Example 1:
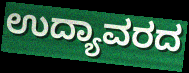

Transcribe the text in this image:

ಉದ್ಯಾವರದ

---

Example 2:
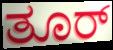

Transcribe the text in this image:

ತೂರ್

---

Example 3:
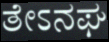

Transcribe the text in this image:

ತೇಽನಘ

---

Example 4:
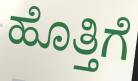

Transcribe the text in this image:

ಹೊತ್ತಿಗೆ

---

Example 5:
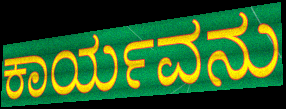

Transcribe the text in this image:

ಕಾರ್ಯವನು